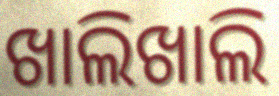
ଖାଲିଖାଲି